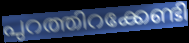
പുറത്തിറക്കേണ്ടി